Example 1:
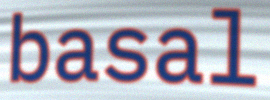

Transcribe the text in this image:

basal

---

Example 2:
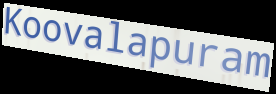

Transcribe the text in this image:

Koovalapuram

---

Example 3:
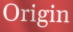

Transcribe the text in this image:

Origin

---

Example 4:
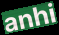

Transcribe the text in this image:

anhi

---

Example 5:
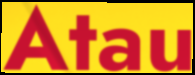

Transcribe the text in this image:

Atau